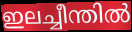
ഇലച്ചീന്തിൽ